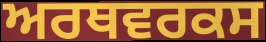
ਅਰਥਵਰਕਸ